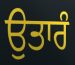
ਉਤਾਰੰ